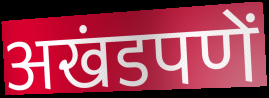
अखंडपणें